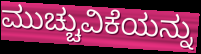
ಮುಚ್ಚುವಿಕೆಯನ್ನು